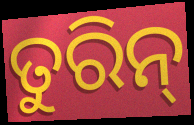
ତୁରିନ୍